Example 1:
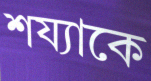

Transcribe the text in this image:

শয্যাকে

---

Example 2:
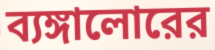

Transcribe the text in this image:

ব্যঙ্গালোরের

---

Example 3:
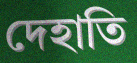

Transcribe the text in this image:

দেহাতি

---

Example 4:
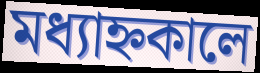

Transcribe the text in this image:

মধ্যাহ্নকালে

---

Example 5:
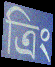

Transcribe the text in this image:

ত্রিং